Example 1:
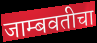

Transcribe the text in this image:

जाम्बवतीचा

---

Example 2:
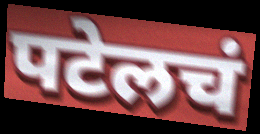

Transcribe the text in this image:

पटेलचं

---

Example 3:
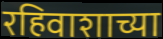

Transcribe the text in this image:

रहिवाशाच्या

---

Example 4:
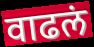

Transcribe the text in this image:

वाढलं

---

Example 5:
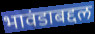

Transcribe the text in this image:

भावंडाबद्दल